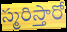
స్మరిస్తారో